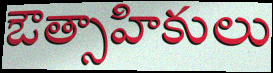
ఔత్సాహికులు